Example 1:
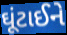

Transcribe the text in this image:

ઘૂંટાઈને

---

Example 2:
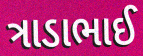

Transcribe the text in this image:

ત્રાડાભાઈ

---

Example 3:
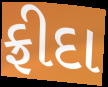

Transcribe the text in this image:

ફ્રીદા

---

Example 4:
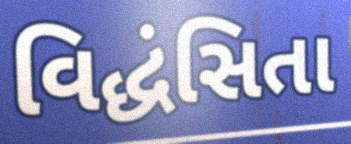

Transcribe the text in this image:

વિદ્ધંસિતા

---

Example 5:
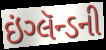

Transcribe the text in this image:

ઇંગ્લૅન્ડની